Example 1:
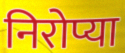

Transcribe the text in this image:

निरोप्या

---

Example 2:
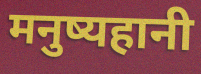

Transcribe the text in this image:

मनुष्यहानी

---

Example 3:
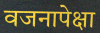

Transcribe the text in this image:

वजनापेक्षा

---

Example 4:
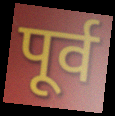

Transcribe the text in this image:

पूर्व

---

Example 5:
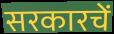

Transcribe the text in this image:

सरकारचें